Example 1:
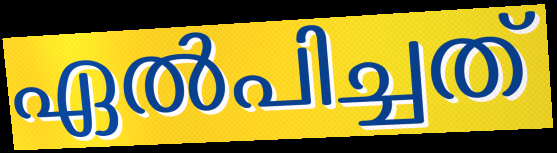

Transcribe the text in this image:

ഏൽപിച്ചത്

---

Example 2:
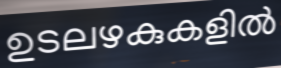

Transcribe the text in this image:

ഉടലഴകുകളിൽ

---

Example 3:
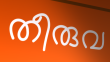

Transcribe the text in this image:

തീരുവ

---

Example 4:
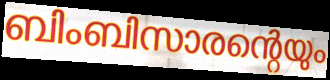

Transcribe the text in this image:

ബിംബിസാരന്റെയും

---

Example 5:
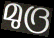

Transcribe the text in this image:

മുദ്ര